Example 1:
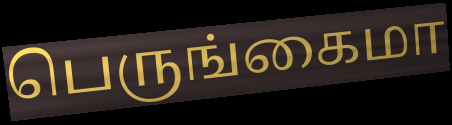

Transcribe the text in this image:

பெருங்கைமா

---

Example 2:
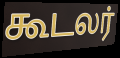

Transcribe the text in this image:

கூடலர்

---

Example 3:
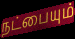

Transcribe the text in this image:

நட்பையும்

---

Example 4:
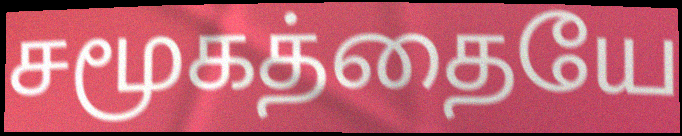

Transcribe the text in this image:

சமூகத்தையே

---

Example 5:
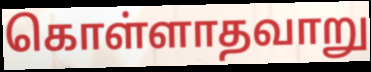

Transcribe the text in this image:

கொள்ளாதவாறு